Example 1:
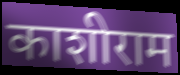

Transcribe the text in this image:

काशीराम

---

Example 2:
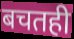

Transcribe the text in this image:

बचतही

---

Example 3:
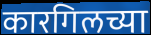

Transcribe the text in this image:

कारगिलच्या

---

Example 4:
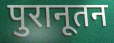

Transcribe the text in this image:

पुरानूतन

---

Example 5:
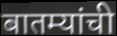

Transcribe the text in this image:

बातम्यांची